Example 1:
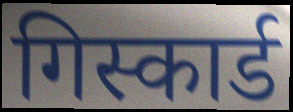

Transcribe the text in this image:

गिस्कार्ड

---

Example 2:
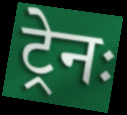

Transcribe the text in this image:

ट्रेनः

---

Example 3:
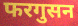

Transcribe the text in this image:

फरगुसन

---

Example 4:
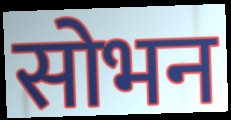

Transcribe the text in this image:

सोभन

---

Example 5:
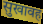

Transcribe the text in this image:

सुखावह